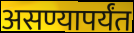
असण्यापर्यंत